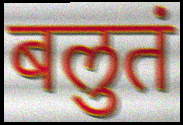
बलुतं